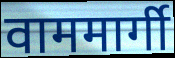
वाममार्गी